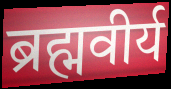
ब्रह्मवीर्य